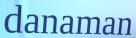
danaman